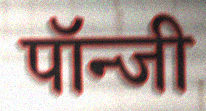
पॉन्जी